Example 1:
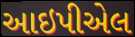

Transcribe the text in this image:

આઇપીએલ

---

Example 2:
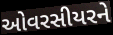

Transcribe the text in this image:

ઓવરસીયરને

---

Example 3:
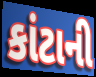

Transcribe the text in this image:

કાંટાની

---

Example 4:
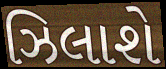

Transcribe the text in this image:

ઝિલાશે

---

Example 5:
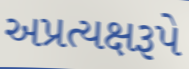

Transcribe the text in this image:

અપ્રત્યક્ષરૂપે